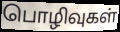
பொழிவுகள்